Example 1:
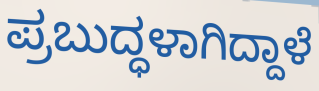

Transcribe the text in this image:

ಪ್ರಬುದ್ಧಳಾಗಿದ್ದಾಳೆ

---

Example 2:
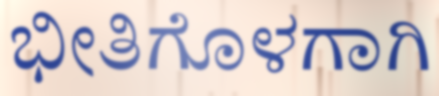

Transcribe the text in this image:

ಭೀತಿಗೊಳಗಾಗಿ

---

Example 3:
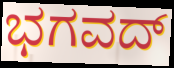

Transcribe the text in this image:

ಭಗವದ್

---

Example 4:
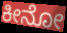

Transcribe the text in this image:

ಕೀನೋ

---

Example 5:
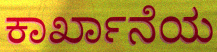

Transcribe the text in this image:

ಕಾರ್ಖಾನೆಯ